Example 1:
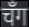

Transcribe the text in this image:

चँग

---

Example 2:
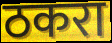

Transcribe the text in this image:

ठकरा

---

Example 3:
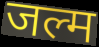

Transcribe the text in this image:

जल्म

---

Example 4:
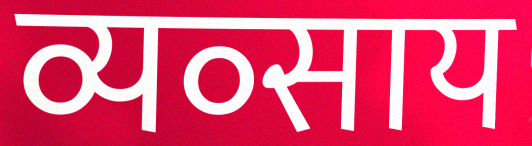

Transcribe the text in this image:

व्यव्साय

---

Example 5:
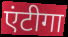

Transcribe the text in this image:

एंटीगा